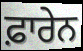
ਫ਼ਾਰੇਨ